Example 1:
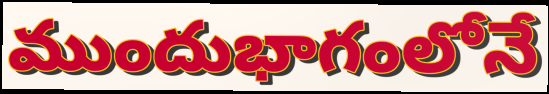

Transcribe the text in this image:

ముందుభాగంలోనే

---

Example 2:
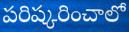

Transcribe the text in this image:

పరిష్కరించాలో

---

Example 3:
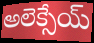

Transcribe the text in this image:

అలెక్సేయ్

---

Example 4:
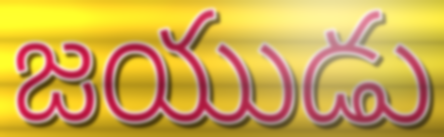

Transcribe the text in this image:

జయుడు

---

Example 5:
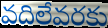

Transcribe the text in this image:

వదిలేవరకు